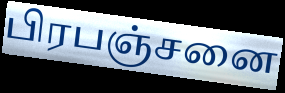
பிரபஞ்சனை